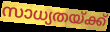
സാധ്യതയ്ക്ക്